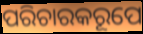
ପରିଚାରକରୂପେ